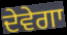
ਦੇਵੇਗਾ